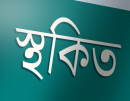
স্থকিত